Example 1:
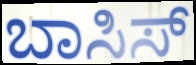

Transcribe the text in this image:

ಬಾಸಿಸ್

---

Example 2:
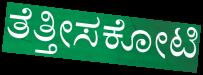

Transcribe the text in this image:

ತೆತ್ತೀಸಕೋಟಿ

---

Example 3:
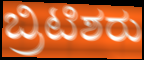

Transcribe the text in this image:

ಬ್ರಿಟಿಶರು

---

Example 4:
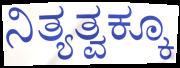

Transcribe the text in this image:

ನಿತ್ಯತ್ವಕ್ಕೂ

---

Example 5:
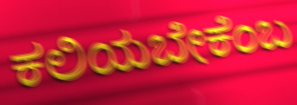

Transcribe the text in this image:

ಕಲಿಯಬೇಕೆಂಬ